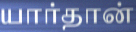
யார்தான்